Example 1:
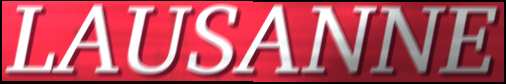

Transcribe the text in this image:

LAUSANNE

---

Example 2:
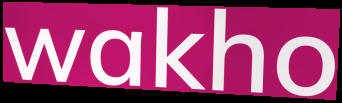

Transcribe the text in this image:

wakho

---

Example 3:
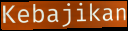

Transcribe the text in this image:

Kebajikan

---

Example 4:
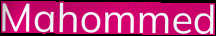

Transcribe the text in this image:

Mahommed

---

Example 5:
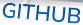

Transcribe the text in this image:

GITHUB